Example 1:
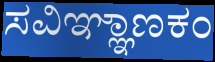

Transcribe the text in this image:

ಸವಿಞ್ಞಾಣಕಂ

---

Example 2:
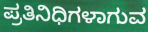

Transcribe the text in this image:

ಪ್ರತಿನಿಧಿಗಳಾಗುವ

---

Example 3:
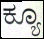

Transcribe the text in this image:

ಕ್ಯೂ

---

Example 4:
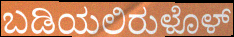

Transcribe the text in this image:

ಬಡಿಯಲಿರುಳೊಳ್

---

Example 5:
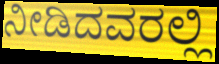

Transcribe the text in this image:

ನೀಡಿದವರಲ್ಲಿ